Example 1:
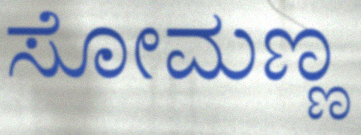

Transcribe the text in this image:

ಸೋಮಣ್ಣ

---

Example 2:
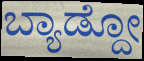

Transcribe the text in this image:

ಬ್ಯಾಡ್ದೋ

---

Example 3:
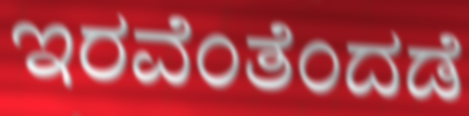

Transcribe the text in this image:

ಇರವೆಂತೆಂದಡೆ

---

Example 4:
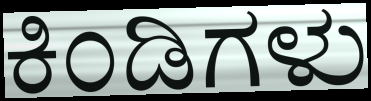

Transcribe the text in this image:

ಕಿಂಡಿಗಳು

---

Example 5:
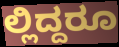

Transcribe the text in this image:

ಲ್ಲಿದ್ದರೂ